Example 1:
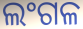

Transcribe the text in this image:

ଲଂଗଳ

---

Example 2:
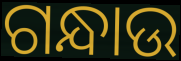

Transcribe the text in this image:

ଗନ୍ଧାଉ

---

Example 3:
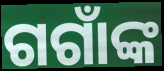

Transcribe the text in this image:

ଗଗାଁଙ୍କ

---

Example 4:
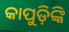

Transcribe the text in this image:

କାପୁଡ଼ିଙ୍କି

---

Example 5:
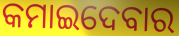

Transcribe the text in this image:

କମାଇଦେବାର